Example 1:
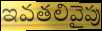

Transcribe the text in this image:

ఇవతలివైపు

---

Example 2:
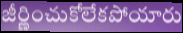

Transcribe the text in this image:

జీర్ణించుకోలేకపోయారు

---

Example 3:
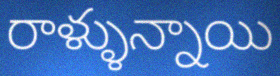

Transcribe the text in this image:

రాళ్ళున్నాయి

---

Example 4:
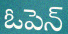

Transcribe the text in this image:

ఓపెన్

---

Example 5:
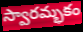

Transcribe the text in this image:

స్వారమ్భకం